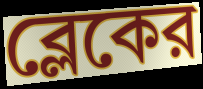
ব্লেকের